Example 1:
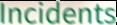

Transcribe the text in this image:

Incidents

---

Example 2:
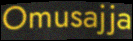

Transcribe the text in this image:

Omusajja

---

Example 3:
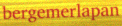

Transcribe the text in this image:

bergemerlapan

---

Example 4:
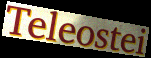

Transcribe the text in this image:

Teleostei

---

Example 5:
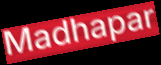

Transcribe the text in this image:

Madhapar